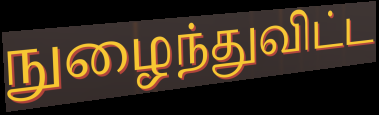
நுழைந்துவிட்ட